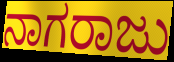
ನಾಗರಾಜು